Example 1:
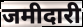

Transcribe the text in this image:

जमीदारी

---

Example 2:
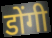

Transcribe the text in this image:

डोंगी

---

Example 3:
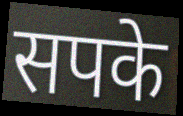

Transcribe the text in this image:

सपके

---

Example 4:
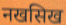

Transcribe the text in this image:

नखसिख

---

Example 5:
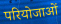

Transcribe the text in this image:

परियोजाओं